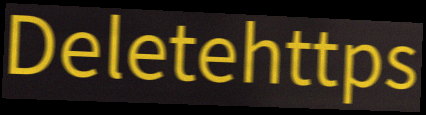
Deletehttps